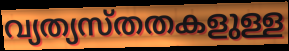
വ്യത്യസ്തതകളുള്ള